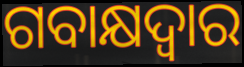
ଗବାକ୍ଷଦ୍ୱାର